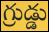
గ్రుడ్డు